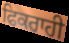
ਫਿਕਰਾਹੀ